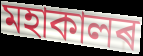
মহাকালৰ